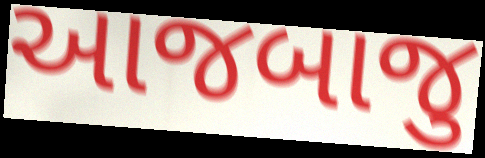
આજબાજુ